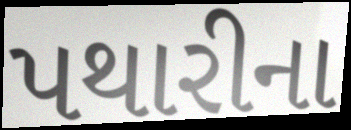
પથારીના